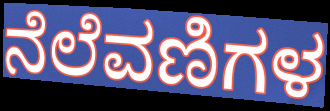
ನೆಲೆವಣಿಗಳ